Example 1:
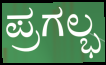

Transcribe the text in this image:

ಪ್ರಗಲ್ಭ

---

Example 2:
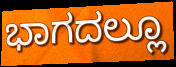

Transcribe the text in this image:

ಭಾಗದಲ್ಲೂ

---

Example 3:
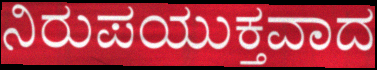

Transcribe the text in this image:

ನಿರುಪಯುಕ್ತವಾದ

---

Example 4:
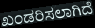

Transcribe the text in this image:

ಖಂಡರಿಸಲಾಗಿದೆ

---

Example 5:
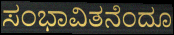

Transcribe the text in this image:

ಸಂಭಾವಿತನೆಂದೂ